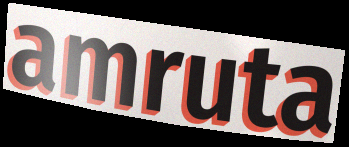
amruta